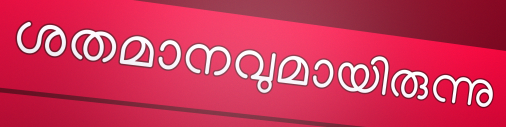
ശതമാനവുമായിരുന്നു